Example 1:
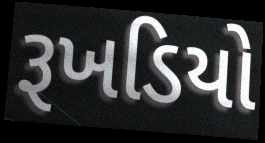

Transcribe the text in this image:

રૂખડિયો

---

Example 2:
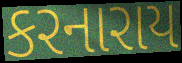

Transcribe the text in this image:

કરનારાય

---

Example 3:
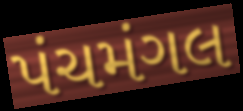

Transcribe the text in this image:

પંચમંગલ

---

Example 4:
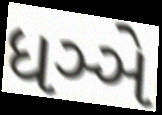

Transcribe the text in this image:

ધઞ્ઞે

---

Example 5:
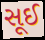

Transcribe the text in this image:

સૂઈ